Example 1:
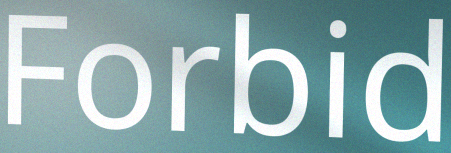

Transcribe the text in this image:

Forbid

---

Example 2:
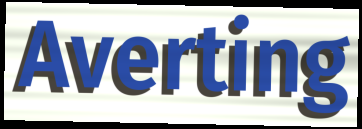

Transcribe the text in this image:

Averting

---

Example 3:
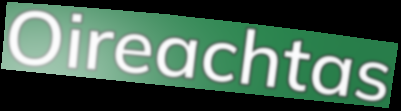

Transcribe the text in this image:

Oireachtas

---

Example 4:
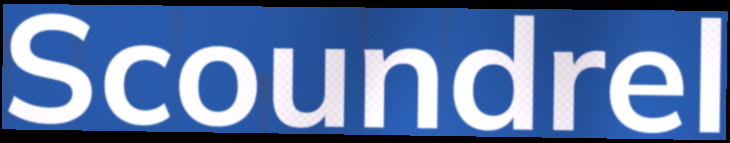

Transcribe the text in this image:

Scoundrel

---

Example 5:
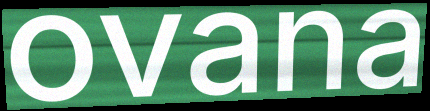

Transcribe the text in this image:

ovana